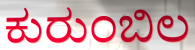
ಕುರುಂಬಿಲ